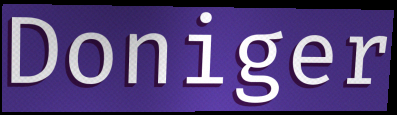
Doniger